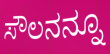
ಸೌಲನನ್ನೂ